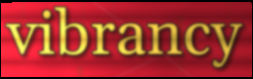
vibrancy